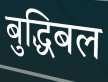
बुद्धिबल